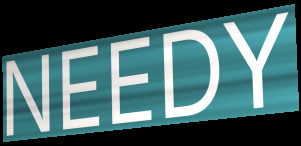
NEEDY